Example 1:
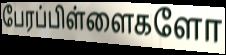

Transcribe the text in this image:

பேரப்பிள்ளைகளோ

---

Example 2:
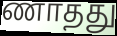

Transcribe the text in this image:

ணாதது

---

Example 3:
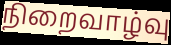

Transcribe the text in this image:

நிறைவாழ்வு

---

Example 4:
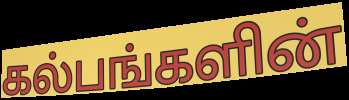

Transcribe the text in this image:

கல்பங்களின்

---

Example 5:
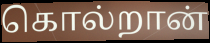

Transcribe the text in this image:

கொல்றான்